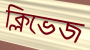
ক্লিভেজ